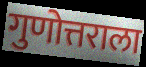
गुणोत्तराला